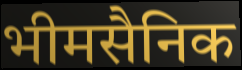
भीमसैनिक